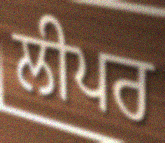
ਲੀਪਰ